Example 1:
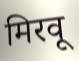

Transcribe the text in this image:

मिरवू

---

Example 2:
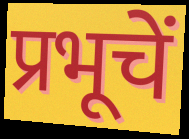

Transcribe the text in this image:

प्रभूचें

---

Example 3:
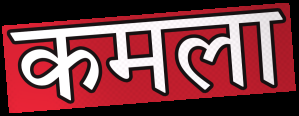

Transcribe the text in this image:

कमला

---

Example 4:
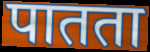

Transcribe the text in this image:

पातता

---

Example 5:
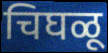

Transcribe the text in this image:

चिघळू